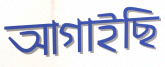
আগাইছি